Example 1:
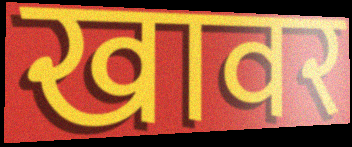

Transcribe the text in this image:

खावर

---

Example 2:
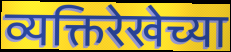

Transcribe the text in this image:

व्यक्तिरेखेच्या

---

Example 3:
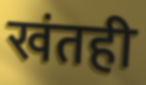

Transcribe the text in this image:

खंतही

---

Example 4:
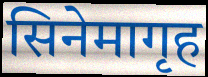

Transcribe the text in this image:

सिनेमागृह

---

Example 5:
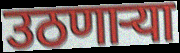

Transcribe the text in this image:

उठणाऱ्या